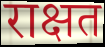
राक्षत